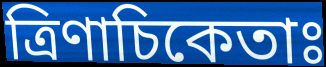
ত্রিণাচিকেতাঃ